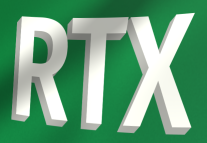
RTX